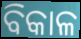
ବିକାଳ